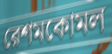
রেশমকোমল